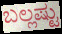
ಬಲ್ಲಷ್ಟು